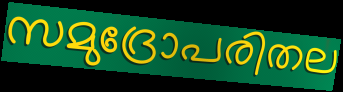
സമുദ്രോപരിതല